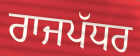
ਰਾਜਪੱਧਰ